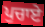
ਪੁਚਾਏ